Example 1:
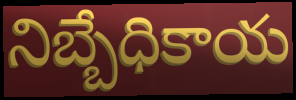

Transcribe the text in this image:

నిబ్బేధికాయ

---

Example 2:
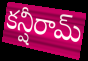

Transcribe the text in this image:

కన్షీరామ్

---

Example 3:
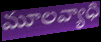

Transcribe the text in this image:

మూలవ్యాధి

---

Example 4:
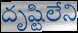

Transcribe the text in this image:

దృష్టిలేని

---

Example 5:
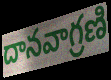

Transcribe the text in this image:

దానవాగ్రణి